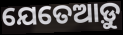
ଯେତେଆଡ଼ୁ